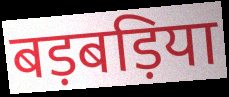
बड़बड़िया